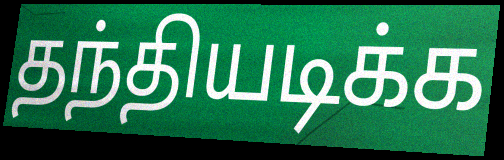
தந்தியடிக்க